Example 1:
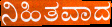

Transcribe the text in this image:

ನಿಹಿತವಾದ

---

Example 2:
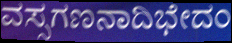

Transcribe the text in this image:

ವಸ್ಸಗಣನಾದಿಭೇದಂ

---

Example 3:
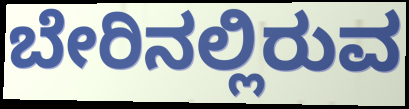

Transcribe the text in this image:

ಬೇರಿನಲ್ಲಿರುವ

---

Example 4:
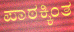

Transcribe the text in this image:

ಪಾಠಕ್ಕಿಂತ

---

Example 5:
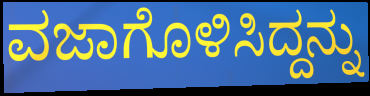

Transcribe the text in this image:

ವಜಾಗೊಳಿಸಿದ್ದನ್ನು